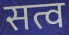
सत्व